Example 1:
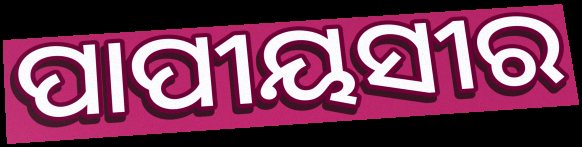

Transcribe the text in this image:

ପାପୀୟସୀର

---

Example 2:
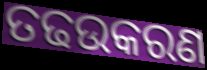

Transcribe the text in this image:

ତଢଉକରଣ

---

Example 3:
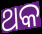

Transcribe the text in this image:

ଥକ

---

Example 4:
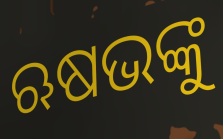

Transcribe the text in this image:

ଋଷଭଙ୍କୁ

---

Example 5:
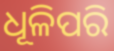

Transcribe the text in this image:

ଧୂଳିପରି